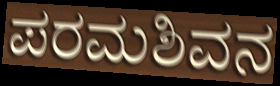
ಪರಮಶಿವನ